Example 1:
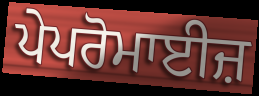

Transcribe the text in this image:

ਪੇਪਰੋਮਾਈਜ਼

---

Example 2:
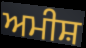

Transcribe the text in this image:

ਅਮੀਸ਼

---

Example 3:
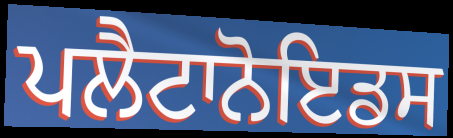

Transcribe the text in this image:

ਪਲੈਟਾਨੋਇਡਸ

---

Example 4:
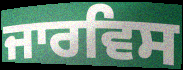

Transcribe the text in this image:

ਜਾਰਵਿਸ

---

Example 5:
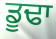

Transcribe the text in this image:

ਡੂਢਾ